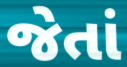
જેતાં